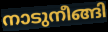
നാടുനീങ്ങി